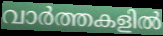
വാർത്തകളിൽ